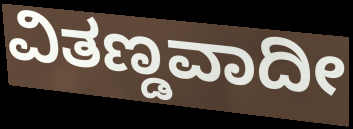
ವಿತಣ್ಡವಾದೀ